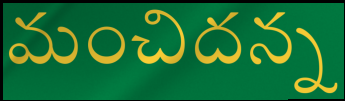
మంచిదన్న